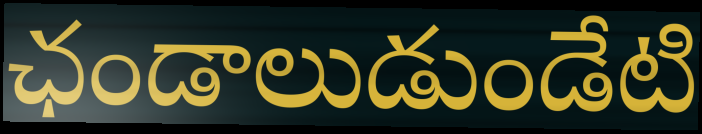
ఛండాలుడుండేటి